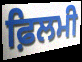
ਫ਼ਿਲਮੀ